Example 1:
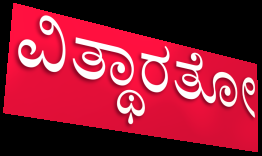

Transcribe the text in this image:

ವಿತ್ಥಾರತೋ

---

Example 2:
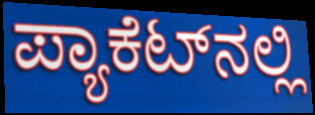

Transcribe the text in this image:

ಪ್ಯಾಕೆಟ್‌ನಲ್ಲಿ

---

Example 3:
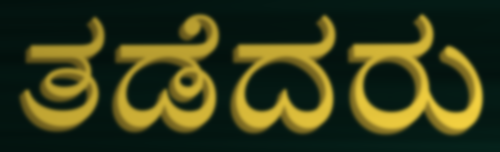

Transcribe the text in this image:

ತಡೆದರು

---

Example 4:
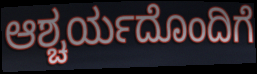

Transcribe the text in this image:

ಆಶ್ಚರ್ಯದೊಂದಿಗೆ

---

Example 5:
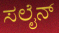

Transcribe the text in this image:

ಸಲೈನ್